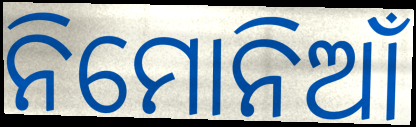
ନିମୋନିଆଁ